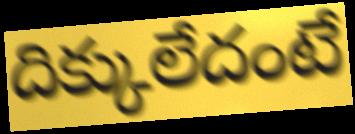
దిక్కులేదంటే